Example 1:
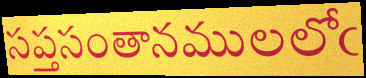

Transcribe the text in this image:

సప్తసంతానములలోఁ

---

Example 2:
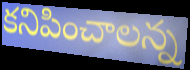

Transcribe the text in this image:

కనిపించాలన్న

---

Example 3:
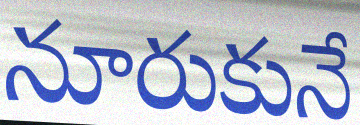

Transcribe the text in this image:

నూరుకునే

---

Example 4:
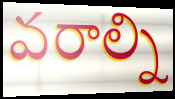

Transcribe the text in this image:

వరాల్ని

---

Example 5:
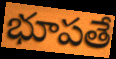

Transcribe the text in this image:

భూపతే